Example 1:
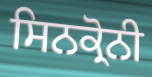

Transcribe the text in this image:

ਸਿਨਕ੍ਰੋਨੀ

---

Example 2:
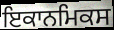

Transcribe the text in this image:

ਇਕਾਨਮਿਕਸ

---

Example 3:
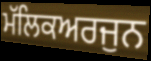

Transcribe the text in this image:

ਮੱਲਿਕਅਰਜੁਨ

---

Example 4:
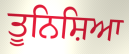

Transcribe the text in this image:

ਤੂਨਿਸ਼ਿਆ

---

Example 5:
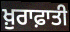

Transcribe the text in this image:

ਖ਼ੁਰਾਫ਼ਾਤੀ